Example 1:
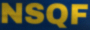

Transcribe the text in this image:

NSQF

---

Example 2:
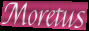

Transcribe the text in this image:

Moretus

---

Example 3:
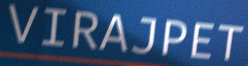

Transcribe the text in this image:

VIRAJPET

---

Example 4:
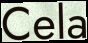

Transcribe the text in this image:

Cela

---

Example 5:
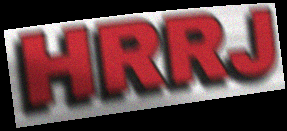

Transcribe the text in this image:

HRRJ